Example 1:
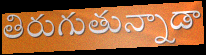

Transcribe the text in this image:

తిరుగుతున్నాడా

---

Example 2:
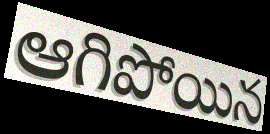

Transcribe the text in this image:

ఆగిపోయిన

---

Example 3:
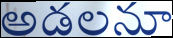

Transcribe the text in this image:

అడలనూ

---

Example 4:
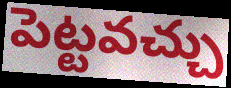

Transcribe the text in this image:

పెట్టవచ్చు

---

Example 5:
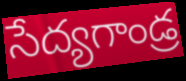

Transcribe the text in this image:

సేద్యగాండ్ర